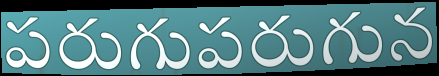
పరుగుపరుగున